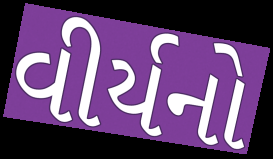
વીર્યનો